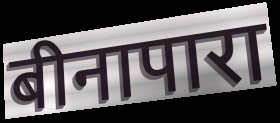
बीनापारा